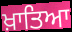
ਖ਼ਾਤਿਆ